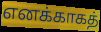
எனக்காகத்